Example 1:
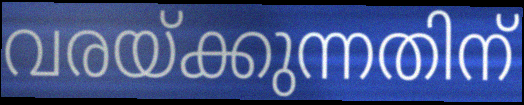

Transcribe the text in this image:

വരയ്ക്കുന്നതിന്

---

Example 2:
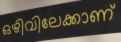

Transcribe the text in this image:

ഒഴിവിലേക്കാണ്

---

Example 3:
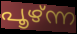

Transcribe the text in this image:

പൂഴ്ന്ന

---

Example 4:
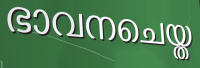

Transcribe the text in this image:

ഭാവനചെയ്ത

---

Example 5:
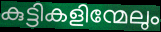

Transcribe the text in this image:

കുട്ടികളിന്മേലും